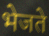
भेजते